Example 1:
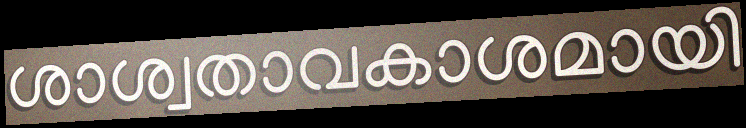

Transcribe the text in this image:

ശാശ്വതാവകാശമായി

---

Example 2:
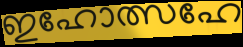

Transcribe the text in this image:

ഇഹോത്സഹേ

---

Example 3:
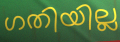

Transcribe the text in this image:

ഗതിയില്ല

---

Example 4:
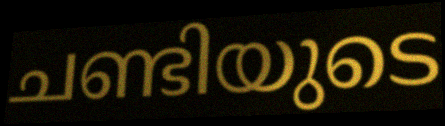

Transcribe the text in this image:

ചണ്ടിയുടെ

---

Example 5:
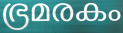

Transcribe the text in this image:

ഭ്രമരകം